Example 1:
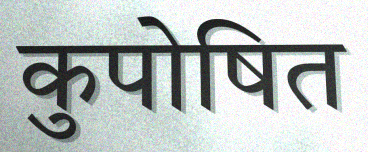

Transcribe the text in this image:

कुपोषित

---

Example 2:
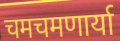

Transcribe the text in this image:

चमचमणार्या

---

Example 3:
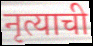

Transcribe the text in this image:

नृत्याची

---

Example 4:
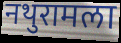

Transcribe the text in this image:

नथुरामला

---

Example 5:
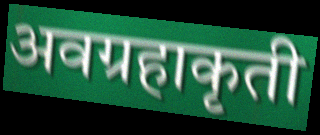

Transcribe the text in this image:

अवग्रहाकृती